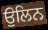
ਉਲਿਨ